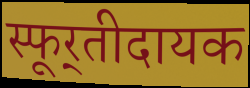
स्फूर्तीदायक